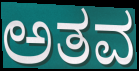
ಅತವ